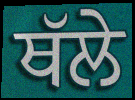
ਥੱਲੇ